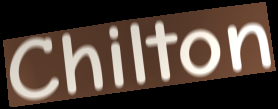
Chilton